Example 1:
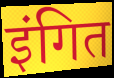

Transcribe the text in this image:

इंगित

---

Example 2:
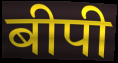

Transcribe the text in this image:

बीपी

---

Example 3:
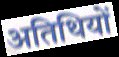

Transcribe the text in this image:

अतिथियों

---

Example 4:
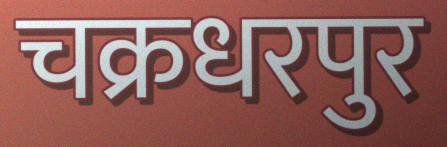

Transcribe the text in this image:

चक्रधरपुर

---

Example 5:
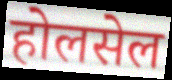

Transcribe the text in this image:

होलसेल